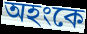
অহংকে